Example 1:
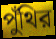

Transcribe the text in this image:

পুঁথির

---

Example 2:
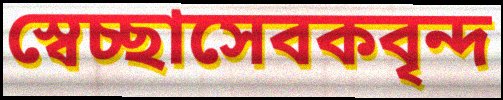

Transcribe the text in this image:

স্বেচ্ছাসেবকবৃন্দ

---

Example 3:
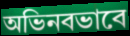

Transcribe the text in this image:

অভিনবভাবে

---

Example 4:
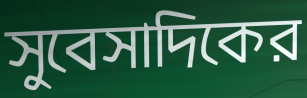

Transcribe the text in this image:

সুবেসাদিকের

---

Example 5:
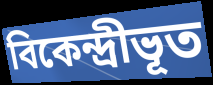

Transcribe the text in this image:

বিকেন্দ্রীভূত